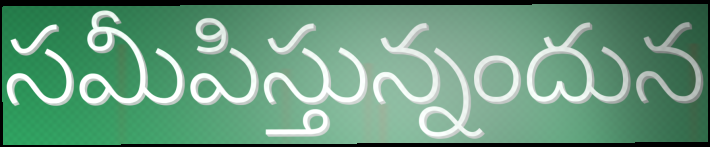
సమీపిస్తున్నందున